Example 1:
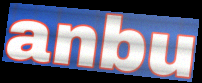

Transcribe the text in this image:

anbu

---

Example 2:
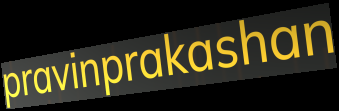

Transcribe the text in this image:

pravinprakashan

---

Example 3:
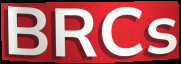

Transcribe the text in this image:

BRCs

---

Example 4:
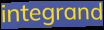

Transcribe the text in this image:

integrand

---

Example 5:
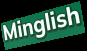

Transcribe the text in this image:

Minglish